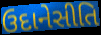
ઉદાનેસીતિ